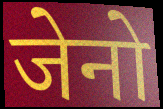
जेनो